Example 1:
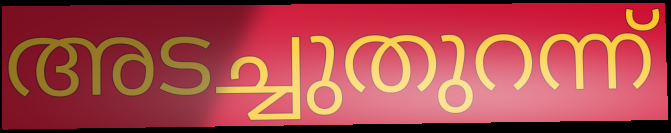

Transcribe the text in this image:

അടച്ചുതുറന്ന്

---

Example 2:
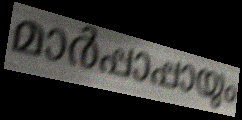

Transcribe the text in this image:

മാർപ്പാപ്പായും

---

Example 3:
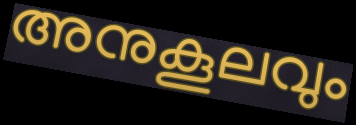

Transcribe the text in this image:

അനുകൂലവും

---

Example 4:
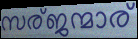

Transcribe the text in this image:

സര്ജന്മാര്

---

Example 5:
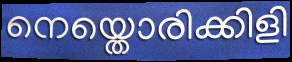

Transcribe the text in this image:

നെയ്തൊരിക്കിളി